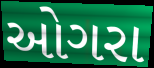
ઓગરા